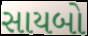
સાયબો